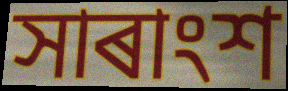
সাৰাংশ